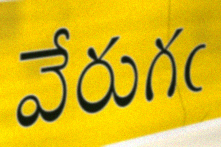
వేరుగఁ